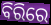
ବିରିରେ